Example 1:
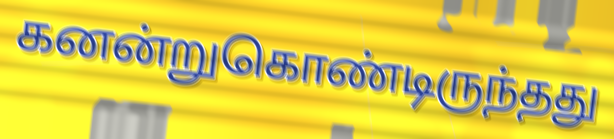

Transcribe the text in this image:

கனன்றுகொண்டிருந்தது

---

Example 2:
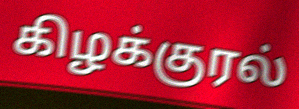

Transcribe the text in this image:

கிழக்குரல்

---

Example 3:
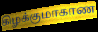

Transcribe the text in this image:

கிழக்குமாகாண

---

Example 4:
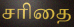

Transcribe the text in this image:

சரிதை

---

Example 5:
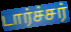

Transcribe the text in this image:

டார்ச்சர்